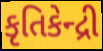
કૃતિકેન્દ્રી